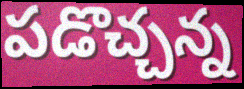
పడొచ్చన్న